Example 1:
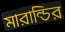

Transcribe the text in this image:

মারান্ডির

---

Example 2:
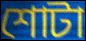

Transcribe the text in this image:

শোটা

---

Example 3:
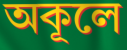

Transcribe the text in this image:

অকূলে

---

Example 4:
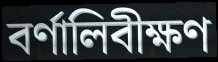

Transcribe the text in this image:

বর্ণালিবীক্ষণ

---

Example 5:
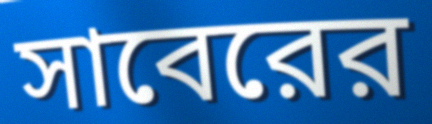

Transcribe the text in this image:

সাবেরের